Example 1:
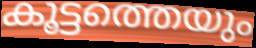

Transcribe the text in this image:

കൂട്ടത്തെയും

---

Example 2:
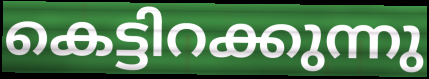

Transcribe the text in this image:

കെട്ടിറക്കുന്നു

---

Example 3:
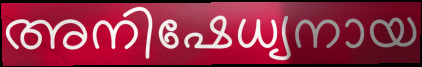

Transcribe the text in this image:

അനിഷേധ്യനായ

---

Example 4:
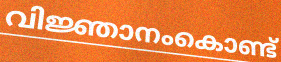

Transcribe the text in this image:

വിജ്ഞാനംകൊണ്ട്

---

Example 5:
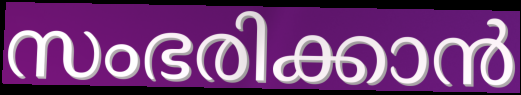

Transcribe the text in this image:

സംഭരിക്കാൻ